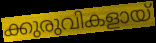
ക്കുരുവികളായ്